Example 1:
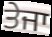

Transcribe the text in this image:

ਤੇਜਾ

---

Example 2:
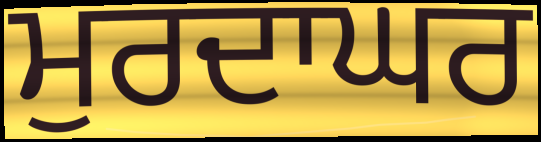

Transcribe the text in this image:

ਮੁਰਦਾਘਰ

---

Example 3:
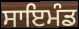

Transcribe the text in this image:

ਸਾਇਮੰਡ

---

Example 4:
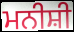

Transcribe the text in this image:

ਮਨੀਸ਼ੀ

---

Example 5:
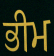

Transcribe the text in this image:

ਭੀਮ